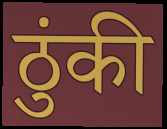
ठुंकी